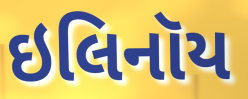
ઇલિનૉય